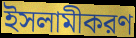
ইসলামীকরণ